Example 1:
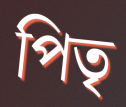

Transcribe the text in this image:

পিতৃ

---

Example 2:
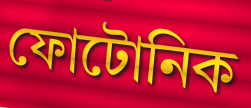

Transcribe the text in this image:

ফোটোনিক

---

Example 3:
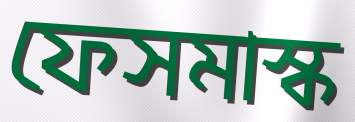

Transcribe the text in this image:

ফেসমাস্ক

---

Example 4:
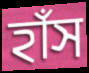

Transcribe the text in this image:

হাঁস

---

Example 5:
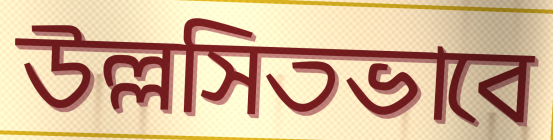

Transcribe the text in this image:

উল্লসিতভাবে